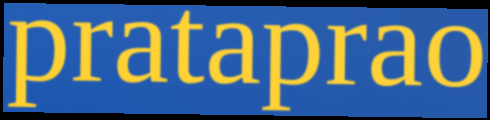
prataprao